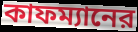
কাফম্যানের